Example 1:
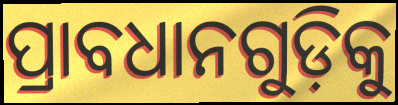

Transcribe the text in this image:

ପ୍ରାବଧାନଗୁଡ଼ିକୁ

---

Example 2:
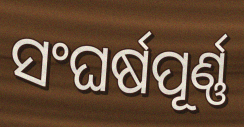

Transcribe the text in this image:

ସଂଘର୍ଷପୂର୍ଣ୍ଣ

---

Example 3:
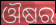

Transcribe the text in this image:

ଔଷର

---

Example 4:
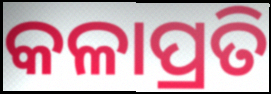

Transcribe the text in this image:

କଳାପ୍ରତି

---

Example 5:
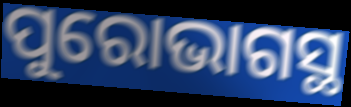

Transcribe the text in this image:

ପୁରୋଭାଗସ୍ଥ